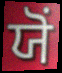
ਯੋਂ